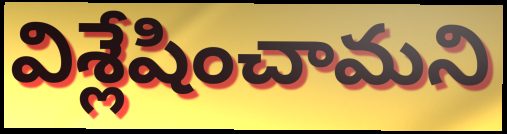
విశ్లేషించామని